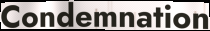
Condemnation